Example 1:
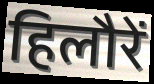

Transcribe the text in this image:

हिलौरें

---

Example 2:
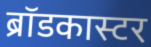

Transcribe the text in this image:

ब्रॉडकास्टर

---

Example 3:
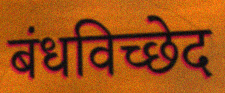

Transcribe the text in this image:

बंधविच्छेद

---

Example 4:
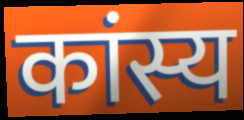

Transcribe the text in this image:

कांस्‍य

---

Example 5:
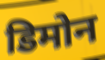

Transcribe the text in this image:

डिमोन